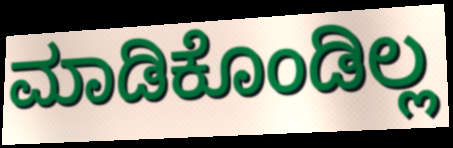
ಮಾಡಿಕೊಂಡಿಲ್ಲ